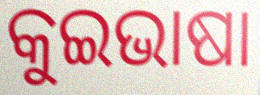
କୁଇଭାଷା